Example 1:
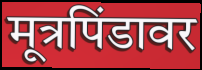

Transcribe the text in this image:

मूत्रपिंडावर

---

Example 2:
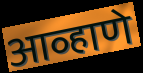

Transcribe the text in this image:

आव्हाणे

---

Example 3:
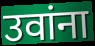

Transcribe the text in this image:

उवांना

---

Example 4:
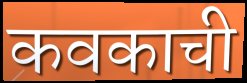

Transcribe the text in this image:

कवकाची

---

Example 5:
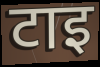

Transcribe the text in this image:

टाइ